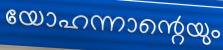
യോഹന്നാന്റെയും